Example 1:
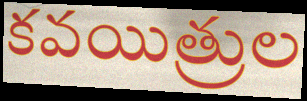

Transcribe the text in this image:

కవయిత్రుల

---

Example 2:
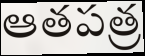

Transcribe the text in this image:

ఆతపత్ర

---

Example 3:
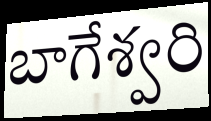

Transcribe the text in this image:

బాగేశ్వరి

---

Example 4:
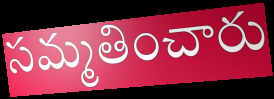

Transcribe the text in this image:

సమ్మతించారు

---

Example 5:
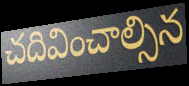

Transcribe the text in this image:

చదివించాల్సిన